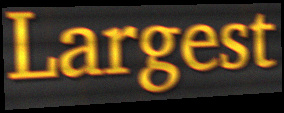
Largest